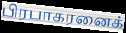
பிரபாகரனைக்